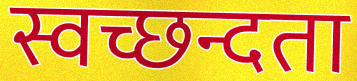
स्वच्छन्दता